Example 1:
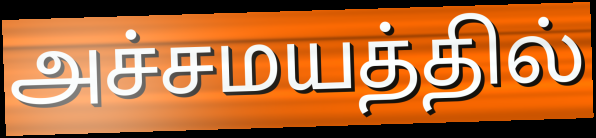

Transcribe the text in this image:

அச்சமயத்தில்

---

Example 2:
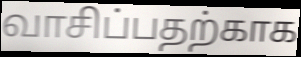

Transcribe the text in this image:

வாசிப்பதற்காக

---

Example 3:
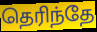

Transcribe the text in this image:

தெரிந்தே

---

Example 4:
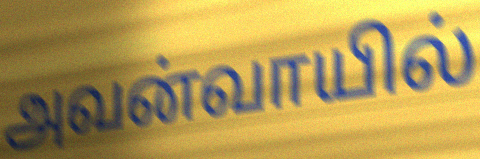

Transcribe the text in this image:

அவன்வாயில்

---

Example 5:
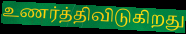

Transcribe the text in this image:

உணர்த்திவிடுகிறது